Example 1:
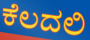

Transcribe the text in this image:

ಕೆಲದಲಿ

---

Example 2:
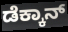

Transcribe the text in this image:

ಡೆಕ್ಕಾನ್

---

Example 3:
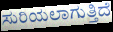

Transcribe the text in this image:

ಸುರಿಯಲಾಗುತ್ತಿದೆ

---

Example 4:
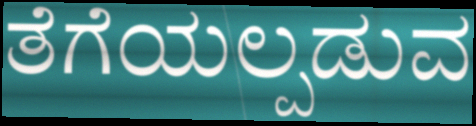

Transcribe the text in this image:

ತೆಗೆಯಲ್ಪಡುವ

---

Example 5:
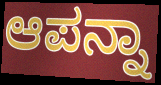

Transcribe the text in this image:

ಆಪನ್ನಾ